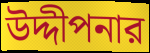
উদ্দীপনার